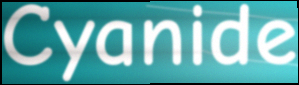
Cyanide